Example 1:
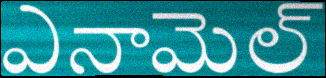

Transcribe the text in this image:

ఎనామెల్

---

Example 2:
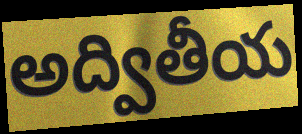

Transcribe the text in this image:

అద్వితీయ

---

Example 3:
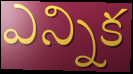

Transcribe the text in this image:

ఎన్నిక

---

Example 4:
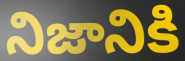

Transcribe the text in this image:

నిజానికి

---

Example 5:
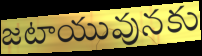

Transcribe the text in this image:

జటాయువునకు